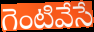
గెంటివేసే